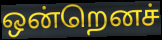
ஒன்றெனச்